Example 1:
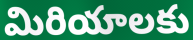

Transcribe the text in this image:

మిరియాలకు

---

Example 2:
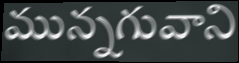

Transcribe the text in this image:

మున్నగువాని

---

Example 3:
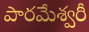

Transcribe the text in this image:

పారమేశ్వరీ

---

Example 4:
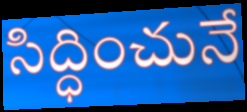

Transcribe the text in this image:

సిద్ధించునే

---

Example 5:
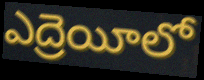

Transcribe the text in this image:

ఎద్రెయీలో